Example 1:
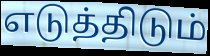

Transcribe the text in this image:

எடுத்திடும்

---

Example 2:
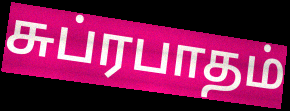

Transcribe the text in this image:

சுப்ரபாதம்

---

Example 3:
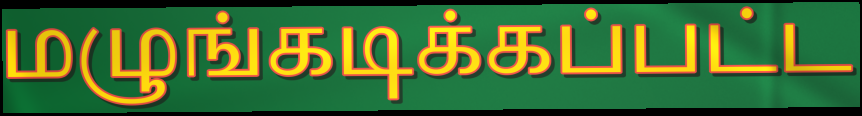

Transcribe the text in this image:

மழுங்கடிக்கப்பட்ட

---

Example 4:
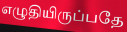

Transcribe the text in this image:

எழுதியிருப்பதே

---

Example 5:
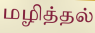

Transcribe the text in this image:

மழித்தல்